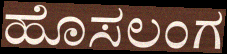
ಹೊಸಲಂಗ